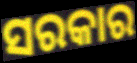
ସରକାର